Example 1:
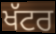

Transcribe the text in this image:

ਖੱਟਰ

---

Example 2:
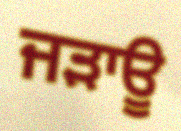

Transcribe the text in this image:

ਜੜਾਊ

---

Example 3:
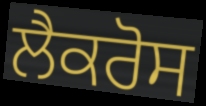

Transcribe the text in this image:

ਲੈਕਰੋਸ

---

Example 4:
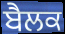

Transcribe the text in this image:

ਬੈਲਕ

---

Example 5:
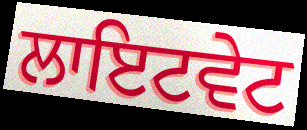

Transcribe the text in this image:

ਲਾਇਟਵੇਟ